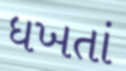
ધખતાં